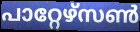
പാറ്റേഴ്സൺ